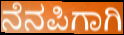
ನೆನಪಿಗಾಗಿ